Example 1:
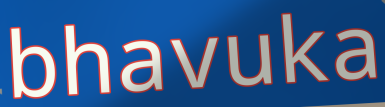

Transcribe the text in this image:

bhavuka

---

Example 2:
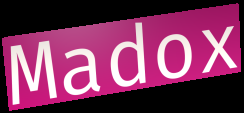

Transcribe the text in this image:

Madox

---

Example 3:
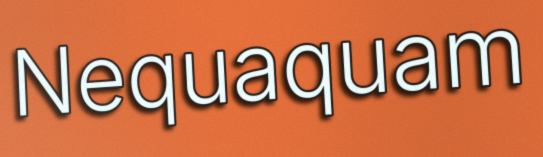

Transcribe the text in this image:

Nequaquam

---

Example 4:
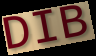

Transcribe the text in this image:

DIB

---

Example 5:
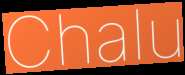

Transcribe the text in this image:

Chalu